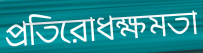
প্রতিরোধক্ষমতা